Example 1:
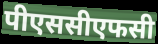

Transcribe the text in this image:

पीएससीएफसी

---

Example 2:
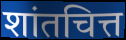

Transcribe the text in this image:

शांतचित्त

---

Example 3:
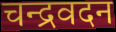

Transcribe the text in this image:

चन्द्रवदन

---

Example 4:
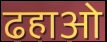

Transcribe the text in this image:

ढहाओ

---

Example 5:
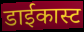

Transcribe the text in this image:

डाईकास्ट